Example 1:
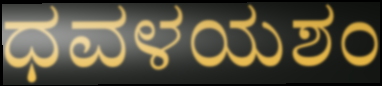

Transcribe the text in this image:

ಧವಳಯಶಂ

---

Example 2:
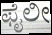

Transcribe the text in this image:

ಫೈಲೀ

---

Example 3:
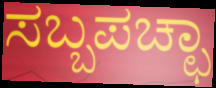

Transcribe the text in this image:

ಸಬ್ಬಪಚ್ಛಾ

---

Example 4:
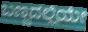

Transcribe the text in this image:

ಬಣ್ಣದಲ್ಲಿಯೇ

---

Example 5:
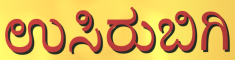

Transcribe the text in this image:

ಉಸಿರುಬಿಗಿ